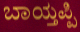
ಬಾಯ್ತಪ್ಪಿ